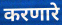
करणारे